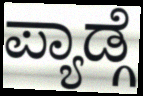
ಪ್ಯಾಡ್ಗೆ